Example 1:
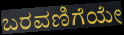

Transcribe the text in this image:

ಬರವಣಿಗೆಯೇ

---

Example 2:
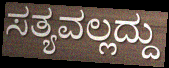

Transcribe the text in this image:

ಸತ್ಯವಲ್ಲದ್ದು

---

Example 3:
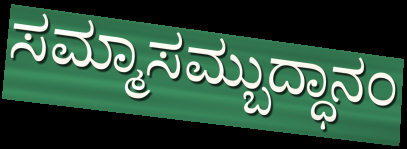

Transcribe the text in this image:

ಸಮ್ಮಾಸಮ್ಬುದ್ಧಾನಂ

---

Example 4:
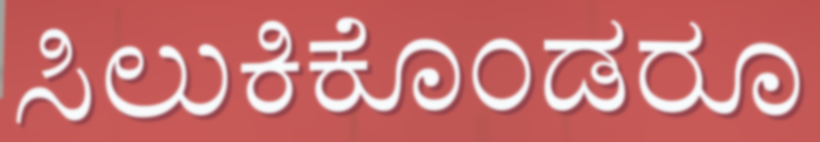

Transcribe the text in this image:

ಸಿಲುಕಿಕೊಂಡರೂ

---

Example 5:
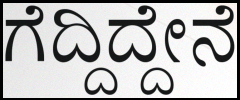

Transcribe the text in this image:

ಗೆದ್ದಿದ್ದೇನೆ